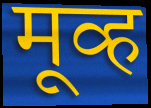
मूव्ह